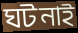
ঘটনাই